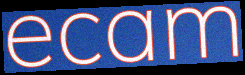
ecam